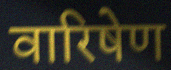
वारिषेण